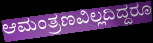
ಆಮಂತ್ರಣವಿಲ್ಲದಿದ್ದರೂ